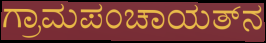
ಗ್ರಾಮಪಂಚಾಯತ್‌ನ